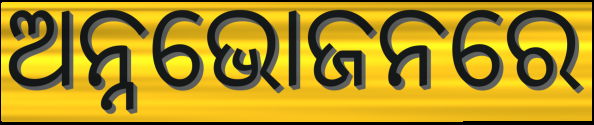
ଅନ୍ନଭୋଜନରେ